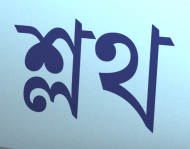
শ্লথ